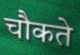
चौकते